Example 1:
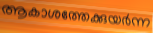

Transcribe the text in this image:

ആകാശത്തേക്കുയർന്ന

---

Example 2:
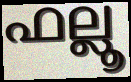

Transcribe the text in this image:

ഫല്ലൂ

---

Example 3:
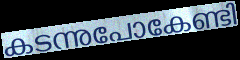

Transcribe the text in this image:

കടന്നുപോകേണ്ടി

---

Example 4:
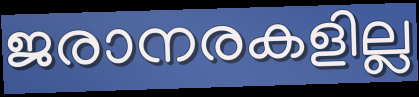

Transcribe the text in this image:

ജരാനരകളില്ല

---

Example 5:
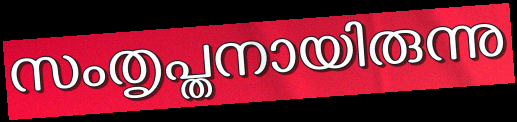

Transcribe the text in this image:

സംതൃപ്തനായിരുന്നു